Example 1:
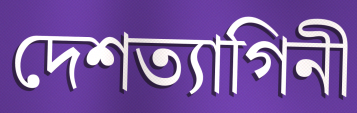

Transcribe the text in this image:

দেশত্যাগিনী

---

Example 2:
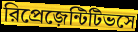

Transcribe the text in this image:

রিপ্রেজ়েন্টিটিভসে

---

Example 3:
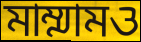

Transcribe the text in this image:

মাম্মামও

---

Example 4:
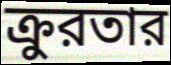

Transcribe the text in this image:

ক্রুরতার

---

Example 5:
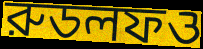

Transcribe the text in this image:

রুডলফও